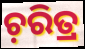
ଚ଼ରିତ୍ର